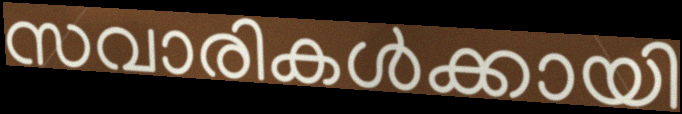
സവാരികൾക്കായി